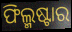
ଫିଲ୍ମଷ୍ଟାର